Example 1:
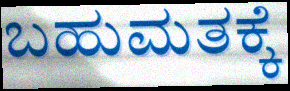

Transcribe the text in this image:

ಬಹುಮತಕ್ಕೆ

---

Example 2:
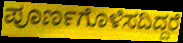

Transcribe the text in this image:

ಪೂರ್ಣಗೊಳಿಸದಿದ್ದರೆ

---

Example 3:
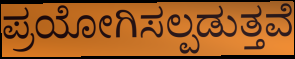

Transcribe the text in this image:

ಪ್ರಯೋಗಿಸಲ್ಪಡುತ್ತವೆ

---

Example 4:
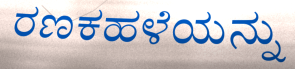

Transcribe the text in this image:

ರಣಕಹಳೆಯನ್ನು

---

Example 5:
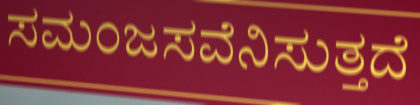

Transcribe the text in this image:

ಸಮಂಜಸವೆನಿಸುತ್ತದೆ